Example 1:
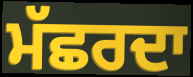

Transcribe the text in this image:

ਮੱਛਰਦਾ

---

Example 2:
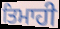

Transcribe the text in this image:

ਤਿਮਾਹੀ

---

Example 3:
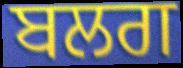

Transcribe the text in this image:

ਬਲਗ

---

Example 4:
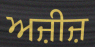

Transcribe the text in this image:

ਅਜ਼ੀਜ਼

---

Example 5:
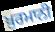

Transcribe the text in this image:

ਖ਼ੁਰਮਾਨੀ